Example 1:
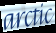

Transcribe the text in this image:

arctic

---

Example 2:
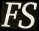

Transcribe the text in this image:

FS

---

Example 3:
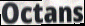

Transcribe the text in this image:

Octans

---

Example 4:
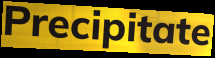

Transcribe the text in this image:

Precipitate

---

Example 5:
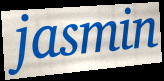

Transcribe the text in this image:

jasmin